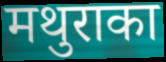
मथुराका